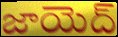
జాయెద్